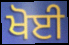
ਖੋਈ